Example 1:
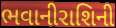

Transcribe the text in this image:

ભવાનીરાશિની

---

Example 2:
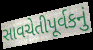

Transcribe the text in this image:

સાવચેતીપૂર્વકનું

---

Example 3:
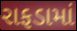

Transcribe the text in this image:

રાફડામાં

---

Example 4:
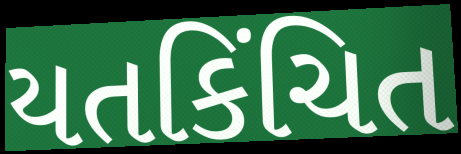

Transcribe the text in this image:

યતકિંચિત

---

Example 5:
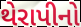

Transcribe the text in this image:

થેરાપીનો